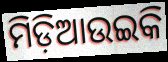
ମିଡ଼ିଆଉଇକି